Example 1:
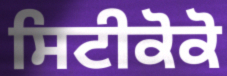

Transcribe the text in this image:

ਸਿਟੀਕੋਕੋ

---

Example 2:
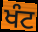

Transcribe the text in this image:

ਖੰਟ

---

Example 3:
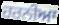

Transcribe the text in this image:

ਹਰਨੀਆ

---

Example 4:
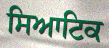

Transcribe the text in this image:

ਸਿਆਟਿਕ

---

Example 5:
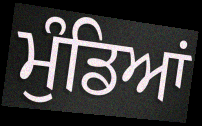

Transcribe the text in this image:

ਮੁੰਡਿਆਂ